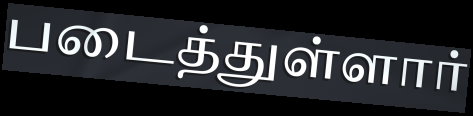
படைத்துள்ளார்